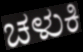
ಚಳುಕಿ